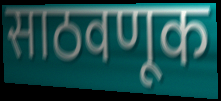
साठवणूक